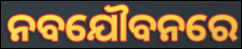
ନବଯୌବନରେ